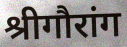
श्रीगौरांग